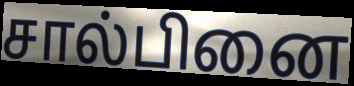
சால்பினை